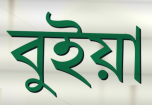
বুইয়া